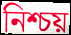
নিশ্চয়